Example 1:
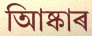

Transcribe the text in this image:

আিষ্কাৰ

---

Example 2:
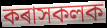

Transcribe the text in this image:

কৰাসকলক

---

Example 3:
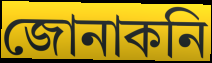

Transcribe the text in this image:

জোনাকনি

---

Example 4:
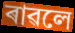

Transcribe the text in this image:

ৰাৱলে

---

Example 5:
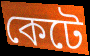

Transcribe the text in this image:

কেটে